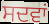
ਸਦਵਾਂ